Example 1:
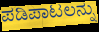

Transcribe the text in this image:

ಪಡಿಪಾಟಲನ್ನು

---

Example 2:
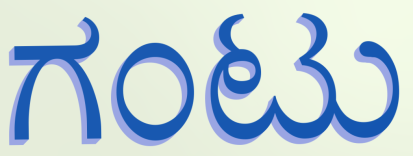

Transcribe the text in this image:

ಗಂಟು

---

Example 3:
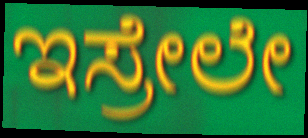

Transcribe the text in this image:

ಇಸ್ರೇಲೇ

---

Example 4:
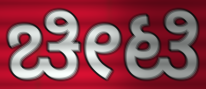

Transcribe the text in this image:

ಚೀಟಿ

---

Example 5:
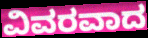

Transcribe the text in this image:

ವಿವರವಾದ